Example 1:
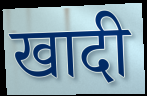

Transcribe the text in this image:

खादी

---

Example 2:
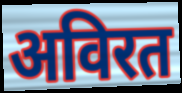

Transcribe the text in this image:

अविरत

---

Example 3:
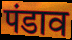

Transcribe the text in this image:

पंडाव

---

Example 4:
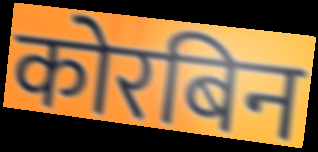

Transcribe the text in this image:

कोरबिन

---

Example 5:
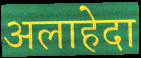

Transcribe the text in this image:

अलाहेदा